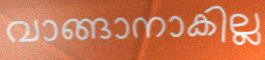
വാങ്ങാനാകില്ല